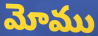
మోము